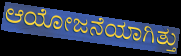
ಆಯೋಜನೆಯಾಗಿತ್ತು